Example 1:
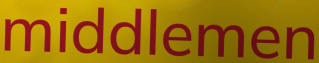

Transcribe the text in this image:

middlemen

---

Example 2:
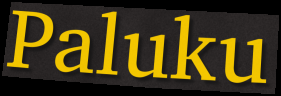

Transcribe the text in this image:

Paluku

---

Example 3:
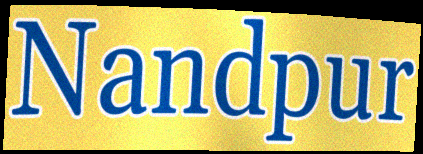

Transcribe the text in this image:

Nandpur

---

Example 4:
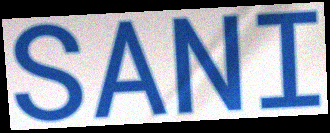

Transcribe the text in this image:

SANI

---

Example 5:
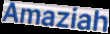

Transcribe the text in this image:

Amaziah